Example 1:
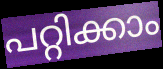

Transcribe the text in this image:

പറ്റിക്കാം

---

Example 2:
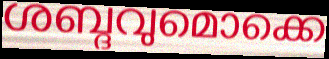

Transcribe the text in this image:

ശബ്ദവുമൊക്കെ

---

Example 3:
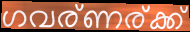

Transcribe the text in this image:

ഗവര്ണര്ക്ക്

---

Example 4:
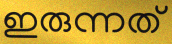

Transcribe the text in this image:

ഇരുന്നത്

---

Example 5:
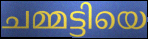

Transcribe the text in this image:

ചമ്മട്ടിയെ